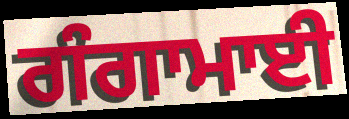
ਗੰਗਾਮਾਈ